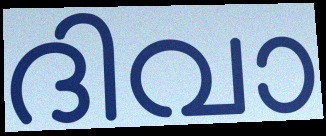
ദിവാ